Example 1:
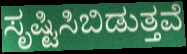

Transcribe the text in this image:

ಸೃಷ್ಟಿಸಿಬಿಡುತ್ತವೆ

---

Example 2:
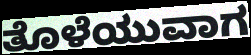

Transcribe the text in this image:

ತೊಳೆಯುವಾಗ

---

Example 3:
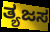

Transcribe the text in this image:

ತ್ಯಜಸ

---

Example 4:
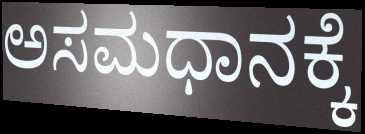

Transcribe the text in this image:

ಅಸಮಧಾನಕ್ಕೆ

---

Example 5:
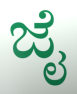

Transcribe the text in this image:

ಜೈ